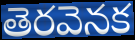
తెరవెనక